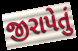
જીરાપેતું